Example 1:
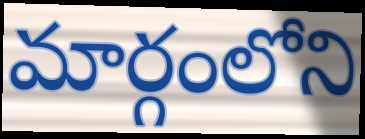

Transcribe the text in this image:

మార్గంలోని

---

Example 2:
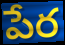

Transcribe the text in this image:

పేర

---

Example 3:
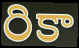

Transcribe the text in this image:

రికా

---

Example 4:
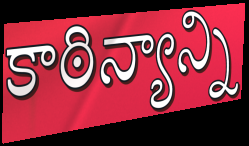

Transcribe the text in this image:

కాఠిన్యాన్ని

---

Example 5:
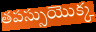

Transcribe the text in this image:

తపస్సుయొక్క